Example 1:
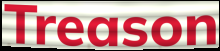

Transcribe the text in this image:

Treason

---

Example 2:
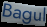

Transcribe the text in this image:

Bagul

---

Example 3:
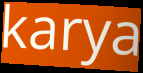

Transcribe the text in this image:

karya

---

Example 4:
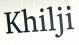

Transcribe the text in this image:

Khilji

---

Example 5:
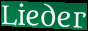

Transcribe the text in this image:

Lieder